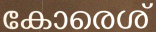
കോരെശ്